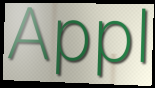
Appl